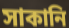
সাকানি